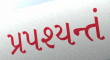
પ્રપશ્યન્તં